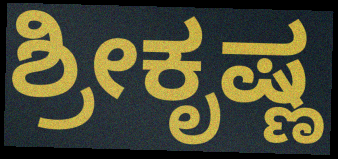
ಶ್ರೀಕೃಷ್ಣ